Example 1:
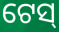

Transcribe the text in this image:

ଟେସ୍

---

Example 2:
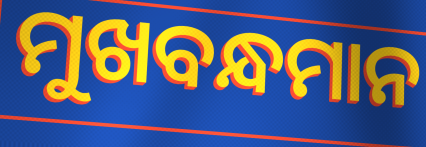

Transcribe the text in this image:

ମୁଖବନ୍ଧମାନ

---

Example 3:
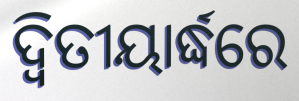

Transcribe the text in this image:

ଦ୍ଵିତୀୟାର୍ଦ୍ଧରେ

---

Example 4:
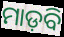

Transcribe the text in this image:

ମାଡ଼ବି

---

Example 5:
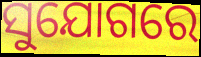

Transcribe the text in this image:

ସୁଯୋଗରେ